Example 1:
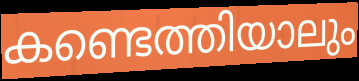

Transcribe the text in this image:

കണ്ടെത്തിയാലും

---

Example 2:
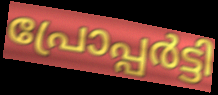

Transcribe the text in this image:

പ്രോപ്പർട്ടി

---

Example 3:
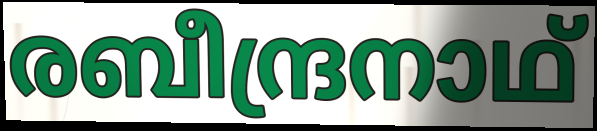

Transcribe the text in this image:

രബീന്ദ്രനാഥ്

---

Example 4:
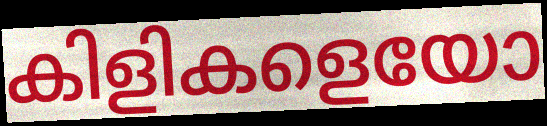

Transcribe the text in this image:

കിളികളെയോ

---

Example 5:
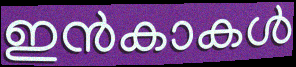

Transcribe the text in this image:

ഇൻകാകൾ